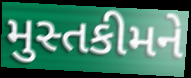
મુસ્તકીમને